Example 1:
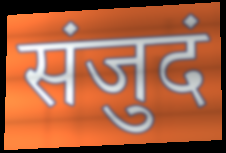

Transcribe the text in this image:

संजुदं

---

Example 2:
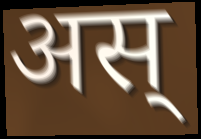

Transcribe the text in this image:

अस्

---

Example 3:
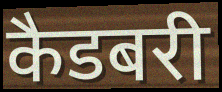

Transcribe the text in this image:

कैडबरी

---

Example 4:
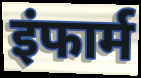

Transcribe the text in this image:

इंफार्म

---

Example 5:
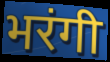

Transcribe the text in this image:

भरंगी